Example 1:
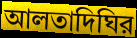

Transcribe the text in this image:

আলতাদিঘির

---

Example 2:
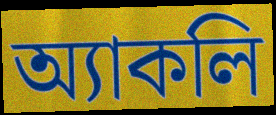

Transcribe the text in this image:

অ্যাকলি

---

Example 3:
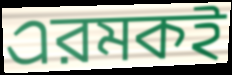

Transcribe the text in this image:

এরমকই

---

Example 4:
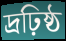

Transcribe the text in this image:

দ্রঢ়িষ্ঠ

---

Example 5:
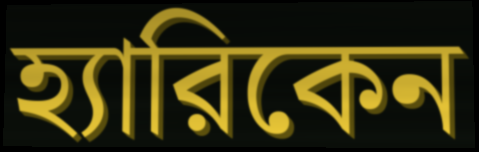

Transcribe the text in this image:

হ্যারিকেন